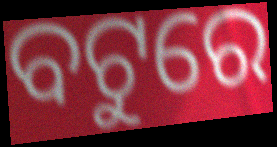
ବଟୁରେ